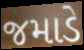
જમાડે